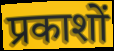
प्रकाशों